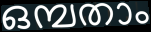
ഒമ്പതാം